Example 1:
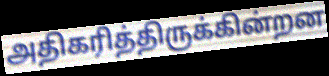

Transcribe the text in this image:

அதிகரித்திருக்கின்றன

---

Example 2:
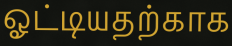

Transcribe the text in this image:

ஓட்டியதற்காக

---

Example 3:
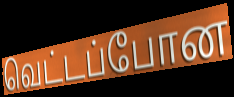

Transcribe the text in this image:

வெட்டப்போன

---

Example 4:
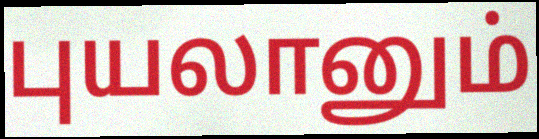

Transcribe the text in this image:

புயலானும்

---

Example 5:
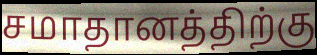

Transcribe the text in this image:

சமாதானத்திற்கு